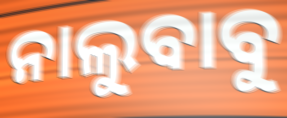
ନାଲୁବାବୁ